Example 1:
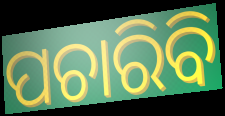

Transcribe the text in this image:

ପଚାରିବି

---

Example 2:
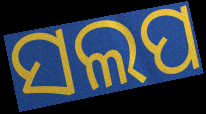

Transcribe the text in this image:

ସଲପ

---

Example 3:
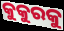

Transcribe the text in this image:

କୁକୁରକୁ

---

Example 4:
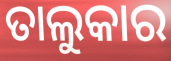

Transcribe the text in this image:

ତାଲୁକାର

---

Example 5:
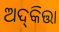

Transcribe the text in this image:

ଅଦ୍‌କିତ୍ତା